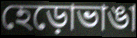
হেড়োভাঙা